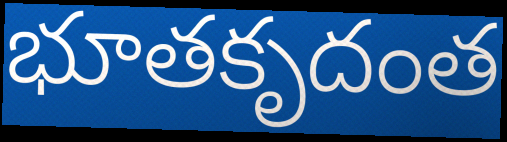
భూతకృదంత